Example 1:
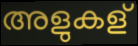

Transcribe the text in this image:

അളുകള്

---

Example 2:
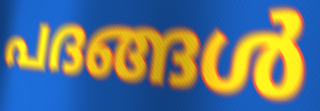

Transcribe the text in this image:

പദങ്ങൾ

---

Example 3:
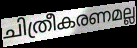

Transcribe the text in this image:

ചിത്രീകരണമല്ല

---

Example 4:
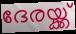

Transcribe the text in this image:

ദേരയ്ക്ക്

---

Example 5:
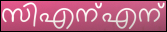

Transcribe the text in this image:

സിഎന്എന്